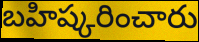
బహిష్కరించారు